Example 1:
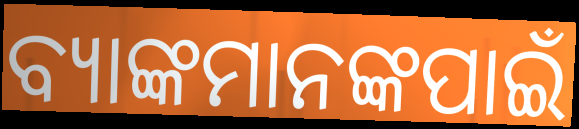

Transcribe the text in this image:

ବ୍ୟାଙ୍କମାନଙ୍କପାଇଁ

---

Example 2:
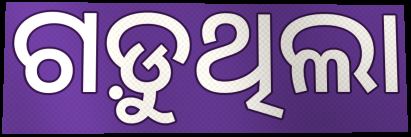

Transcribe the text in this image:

ଗଡ଼ୁଥିଲା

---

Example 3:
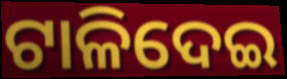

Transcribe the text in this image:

ଟାଳିଦେଇ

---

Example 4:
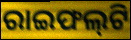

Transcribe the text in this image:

ରାଇଫଲ୍‍ଟି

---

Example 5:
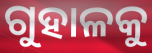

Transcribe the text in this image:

ଗୁହାଳକୁ